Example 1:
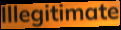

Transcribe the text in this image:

Illegitimate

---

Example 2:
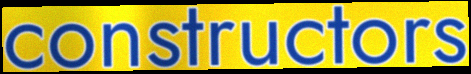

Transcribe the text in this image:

constructors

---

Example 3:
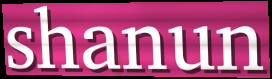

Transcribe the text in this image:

shanun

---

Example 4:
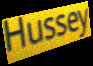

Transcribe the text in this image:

Hussey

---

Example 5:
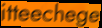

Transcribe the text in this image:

itteechege